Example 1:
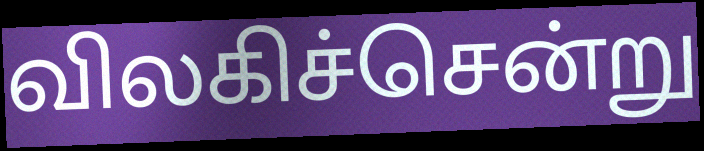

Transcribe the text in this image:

விலகிச்சென்று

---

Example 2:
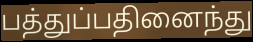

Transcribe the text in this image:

பத்துப்பதினைந்து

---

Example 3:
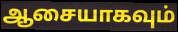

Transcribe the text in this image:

ஆசையாகவும்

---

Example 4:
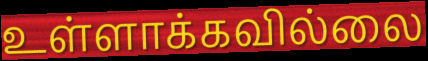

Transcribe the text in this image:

உள்ளாக்கவில்லை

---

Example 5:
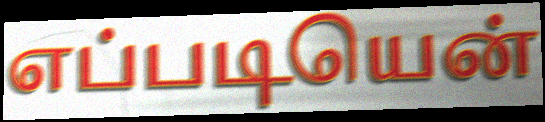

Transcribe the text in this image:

எப்படியென்